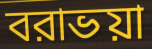
বরাভয়া